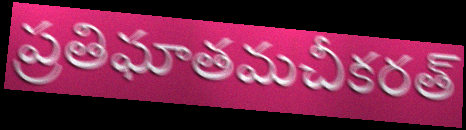
ప్రతిఘాతమచీకరత్